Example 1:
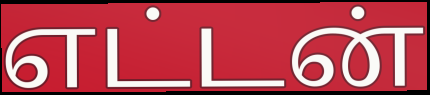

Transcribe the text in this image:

எட்டன்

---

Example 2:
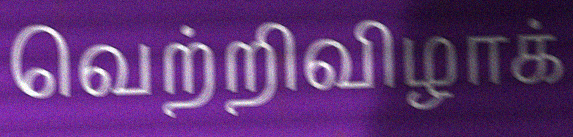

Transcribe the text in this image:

வெற்றிவிழாக்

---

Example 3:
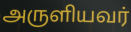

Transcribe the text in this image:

அருளியவர்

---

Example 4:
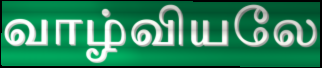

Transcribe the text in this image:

வாழ்வியலே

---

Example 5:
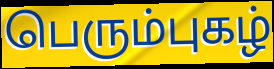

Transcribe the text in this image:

பெரும்புகழ்